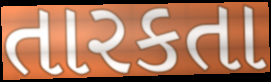
તારકતા